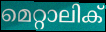
മെറ്റാലിക്